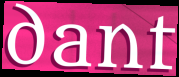
dant